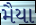
મૈયા